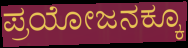
ಪ್ರಯೋಜನಕ್ಕೂ